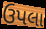
ઉપલા